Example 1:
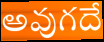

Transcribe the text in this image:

అవుగదే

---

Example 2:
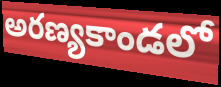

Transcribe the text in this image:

అరణ్యకాండలో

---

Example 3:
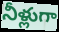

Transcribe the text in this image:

నీళ్లుగా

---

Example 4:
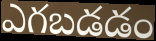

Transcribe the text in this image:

ఎగబడడం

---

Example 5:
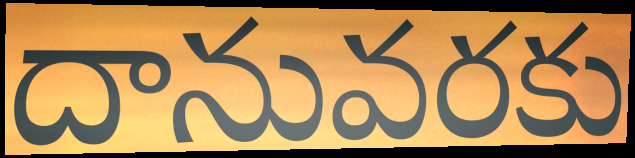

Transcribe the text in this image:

దానువరకు